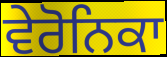
ਵੇਰੋਨਿਕਾ